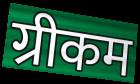
ग्रीकम